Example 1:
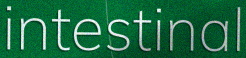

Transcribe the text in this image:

intestinal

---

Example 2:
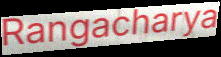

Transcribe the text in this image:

Rangacharya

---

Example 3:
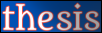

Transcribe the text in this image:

thesis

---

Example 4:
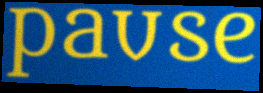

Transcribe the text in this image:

pause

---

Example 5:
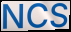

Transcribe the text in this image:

NCS